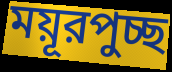
ময়ূরপুচ্ছ